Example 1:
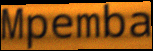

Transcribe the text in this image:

Mpemba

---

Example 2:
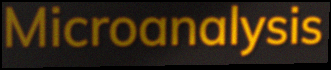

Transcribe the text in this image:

Microanalysis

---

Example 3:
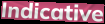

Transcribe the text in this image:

Indicative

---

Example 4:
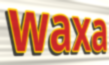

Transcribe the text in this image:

waxa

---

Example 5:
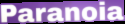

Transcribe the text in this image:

Paranoia